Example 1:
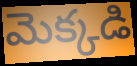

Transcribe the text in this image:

మెక్కడి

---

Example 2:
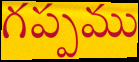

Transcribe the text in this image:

గప్పము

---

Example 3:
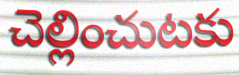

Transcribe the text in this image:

చెల్లించుటకు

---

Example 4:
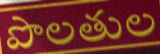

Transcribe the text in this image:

పొలతుల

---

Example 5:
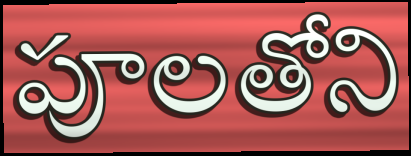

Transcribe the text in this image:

పూలతోని